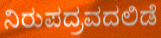
ನಿರುಪದ್ರವದಲಿಡೆ